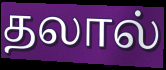
தலால்